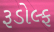
રૂડોલ્ફ